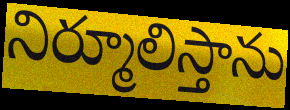
నిర్మూలిస్తాను